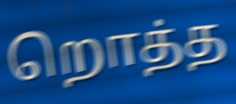
றொத்த